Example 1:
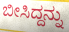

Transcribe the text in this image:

ಬೀಸಿದ್ದನ್ನು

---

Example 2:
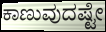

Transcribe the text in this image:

ಕಾಣುವುದಷ್ಟೇ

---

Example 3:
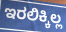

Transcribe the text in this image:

ಇರಲಿಕ್ಕಿಲ್ಲ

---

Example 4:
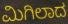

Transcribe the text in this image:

ಮಿಗಿಲಾದ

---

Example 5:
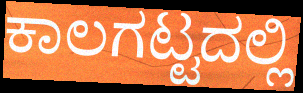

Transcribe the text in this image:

ಕಾಲಗಟ್ಟದಲ್ಲಿ